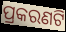
ପ୍ରକରଣଟି